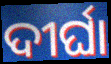
ଦୀର୍ଘା